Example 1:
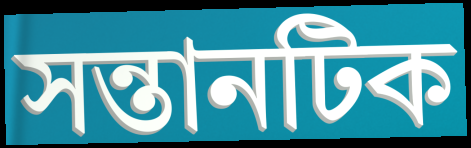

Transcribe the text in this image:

সন্তানটিক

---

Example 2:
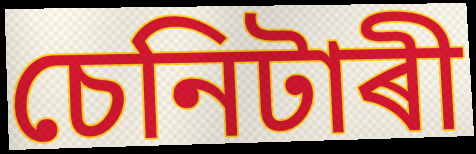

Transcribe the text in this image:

চেনিটাৰী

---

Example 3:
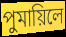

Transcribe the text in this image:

পুমায়িলে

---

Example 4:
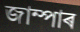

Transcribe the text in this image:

জাম্পাৰ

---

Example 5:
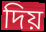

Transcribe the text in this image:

দিয়